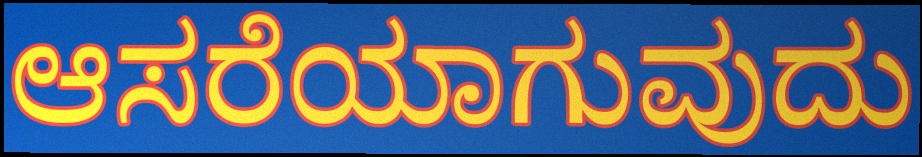
ಆಸರೆಯಾಗುವುದು